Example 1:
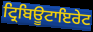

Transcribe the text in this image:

ਟ੍ਰਿਬਿਊਟਾਇਰੇਟ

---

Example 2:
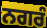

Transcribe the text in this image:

ਨਗਰੰ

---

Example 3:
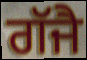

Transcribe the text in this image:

ਗੱਜੈ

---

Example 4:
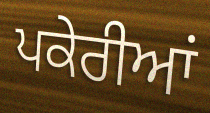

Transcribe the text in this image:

ਪਕੇਰੀਆਂ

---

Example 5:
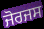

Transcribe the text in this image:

ਜੋਰਜਸ